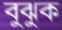
বুঝুক